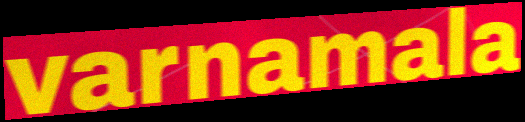
varnamala